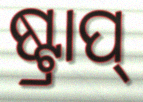
ଷ୍ଟ୍ରାପ୍